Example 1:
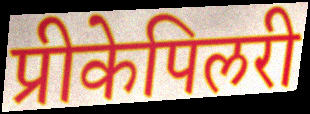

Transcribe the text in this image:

प्रीकेपिलरी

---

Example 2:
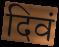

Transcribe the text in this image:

दिवं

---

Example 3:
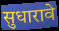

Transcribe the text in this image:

सुधारावे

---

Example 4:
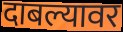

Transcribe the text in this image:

दाबल्यावर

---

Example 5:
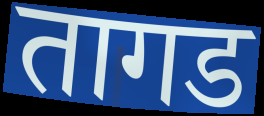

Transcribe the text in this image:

तागड